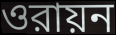
ওরায়ন